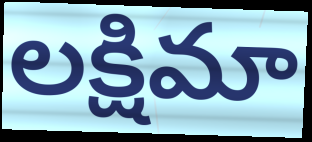
లక్షిమా